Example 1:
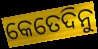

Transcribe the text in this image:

କେତେଦିନୁ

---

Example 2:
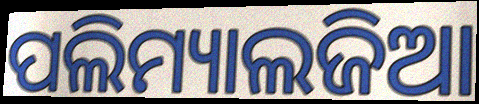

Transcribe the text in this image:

ପଲିମ୍ୟାଲଜିଆ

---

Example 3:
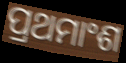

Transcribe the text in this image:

ପ୍ରଥମାଂଶ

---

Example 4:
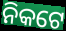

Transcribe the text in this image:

ନିକଟେ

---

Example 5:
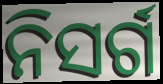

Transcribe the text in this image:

ନିସର୍ଗ